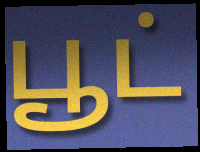
பூட்